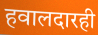
हवालदारही